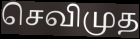
செவிமுத